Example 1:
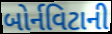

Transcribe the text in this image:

બોર્નવિટાની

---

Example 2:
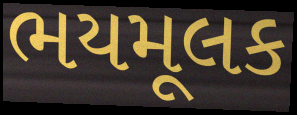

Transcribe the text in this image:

ભયમૂલક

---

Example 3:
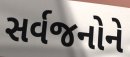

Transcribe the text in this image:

સર્વજનોને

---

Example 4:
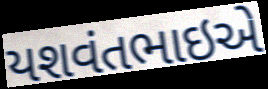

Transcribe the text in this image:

યશવંતભાઇએ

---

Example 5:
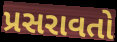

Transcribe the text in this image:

પ્રસરાવતો